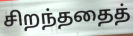
சிறந்ததைத்